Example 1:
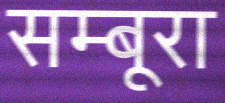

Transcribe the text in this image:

सम्बूरा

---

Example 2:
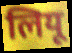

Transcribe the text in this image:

लियू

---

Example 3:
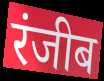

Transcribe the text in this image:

रंजीब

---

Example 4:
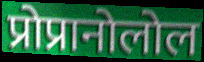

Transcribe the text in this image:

प्रोप्रानोलोल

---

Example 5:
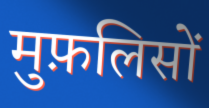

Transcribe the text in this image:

मुफ़लिसों